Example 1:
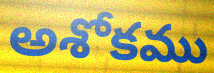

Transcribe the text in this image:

అశోకము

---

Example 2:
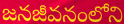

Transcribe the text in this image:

జనజీవనంలోని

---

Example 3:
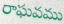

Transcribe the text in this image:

రాఘవము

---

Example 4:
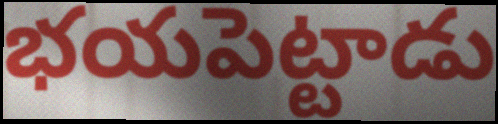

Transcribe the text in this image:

భయపెట్టాడు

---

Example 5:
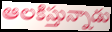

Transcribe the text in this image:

ఆలకిస్తున్నాడు